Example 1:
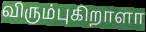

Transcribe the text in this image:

விரும்புகிறாளா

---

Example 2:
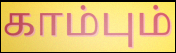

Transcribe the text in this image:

காம்பும்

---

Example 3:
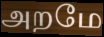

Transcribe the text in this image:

அறமே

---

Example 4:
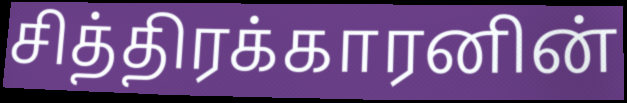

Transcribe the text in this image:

சித்திரக்காரனின்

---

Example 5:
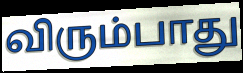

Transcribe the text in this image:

விரும்பாது